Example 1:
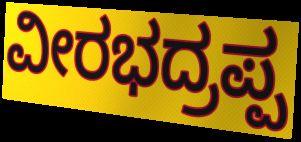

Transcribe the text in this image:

ವೀರಭದ್ರಪ್ಪ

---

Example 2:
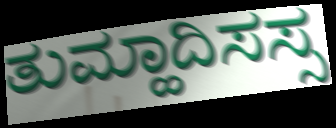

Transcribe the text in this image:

ತುಮ್ಹಾದಿಸಸ್ಸ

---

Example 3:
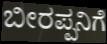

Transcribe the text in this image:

ಬೀರಪ್ಪನಿಗೆ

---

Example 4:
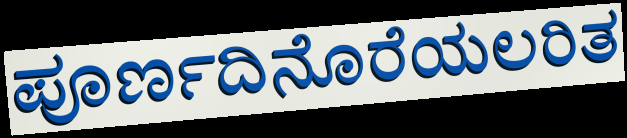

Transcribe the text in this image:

ಪೂರ್ಣದಿನೊರೆಯಲರಿತ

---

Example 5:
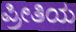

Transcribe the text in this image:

ಪ್ರೀತಿಯ